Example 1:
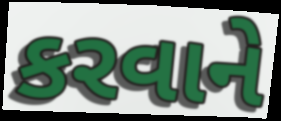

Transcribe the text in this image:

કરવાને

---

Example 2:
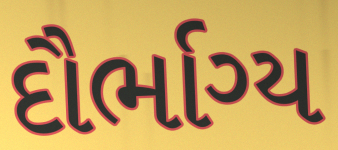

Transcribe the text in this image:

દૌર્ભાગ્ય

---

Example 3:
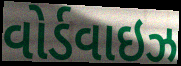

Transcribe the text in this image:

વોર્ડવાઇઝ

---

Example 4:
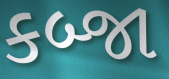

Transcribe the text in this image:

કબ્જા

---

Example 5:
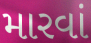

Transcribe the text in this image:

મારવાં